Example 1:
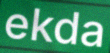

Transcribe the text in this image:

ekda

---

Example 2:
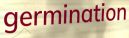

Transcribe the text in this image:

germination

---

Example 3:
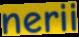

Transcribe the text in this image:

nerii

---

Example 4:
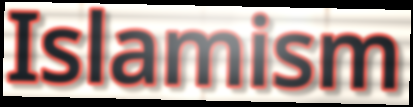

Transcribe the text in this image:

Islamism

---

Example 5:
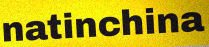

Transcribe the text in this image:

natinchina